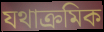
যথাক্ৰমিক